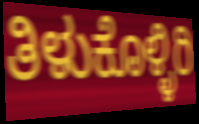
ತಿಳುಕೊಳ್ಳಿರಿ